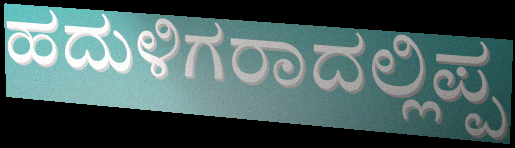
ಹದುಳಿಗರಾದಲ್ಲಿಪ್ಪ